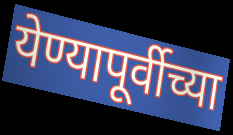
येण्यापूर्वीच्या